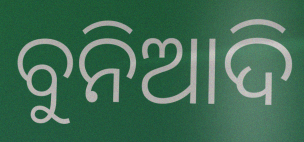
ବୁନିଆଦି